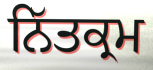
ਨਿੱਤਕ੍ਰਮ